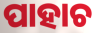
ପାହାଚ